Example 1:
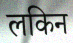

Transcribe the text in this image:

लकिन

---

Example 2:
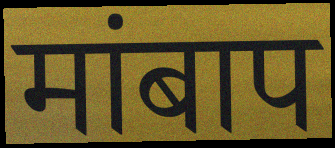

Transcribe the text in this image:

मांबाप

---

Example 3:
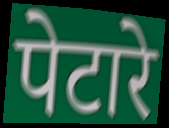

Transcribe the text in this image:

पेटारे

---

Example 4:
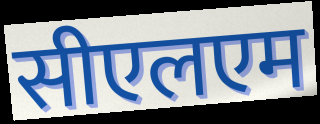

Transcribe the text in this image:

सीएलएम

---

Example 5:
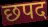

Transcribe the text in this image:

छपद